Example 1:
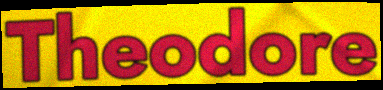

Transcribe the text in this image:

Theodore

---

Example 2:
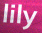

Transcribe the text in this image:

lily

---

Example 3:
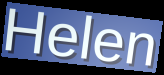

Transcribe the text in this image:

Helen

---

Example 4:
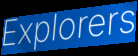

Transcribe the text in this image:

Explorers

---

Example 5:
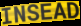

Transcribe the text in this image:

INSEAD